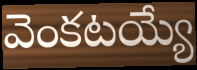
వెంకటయ్యే